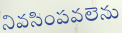
నివసింపవలెను